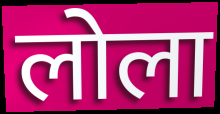
लोला